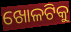
ଖୋଳଟିକୁ